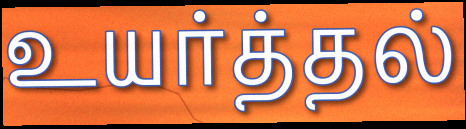
உயர்த்தல்